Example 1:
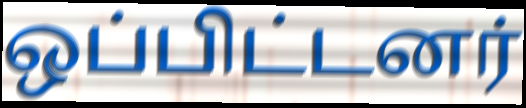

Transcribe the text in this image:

ஒப்பிட்டனர்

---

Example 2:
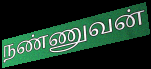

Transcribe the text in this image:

நண்ணுவன்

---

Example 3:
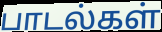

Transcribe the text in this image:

பாடல்கள்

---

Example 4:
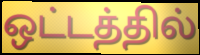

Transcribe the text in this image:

ஒட்டத்தில்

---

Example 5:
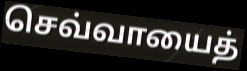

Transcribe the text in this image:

செவ்வாயைத்